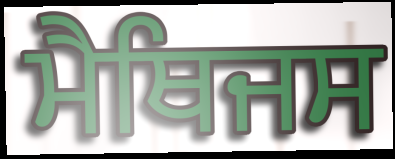
ਮੈਥਿਜਸ